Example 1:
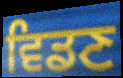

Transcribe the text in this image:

ਵਿਡਣ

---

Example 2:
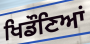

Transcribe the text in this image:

ਖਿਡੌਣਿਆਂ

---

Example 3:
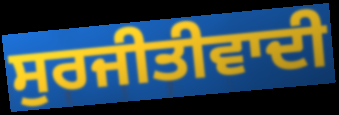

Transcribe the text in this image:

ਸੁਰਜੀਤੀਵਾਦੀ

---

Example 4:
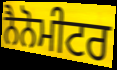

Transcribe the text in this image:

ਨੈਨੋਮੀਟਰ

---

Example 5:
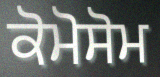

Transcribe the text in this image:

ਕੋਮੋਸੋਮ